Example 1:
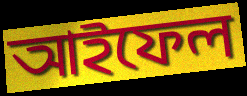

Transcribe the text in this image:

আইফেল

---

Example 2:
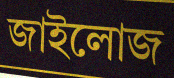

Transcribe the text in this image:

জাইলোজ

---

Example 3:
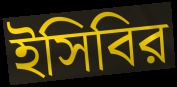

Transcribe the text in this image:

ইসিবির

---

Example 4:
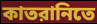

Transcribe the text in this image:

কাতরানিতে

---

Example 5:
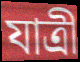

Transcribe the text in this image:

যাত্রী